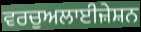
ਵਰਚੁਅਲਾਈਜ਼ੇਸ਼ਨ